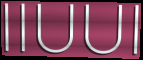
IIUUI